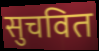
सुचवित